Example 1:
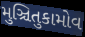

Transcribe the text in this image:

મુઞ્ચિતુકામોવ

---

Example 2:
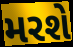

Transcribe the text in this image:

મરશે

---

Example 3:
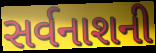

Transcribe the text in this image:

સર્વનાશની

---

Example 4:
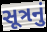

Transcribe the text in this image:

સૂત્રનું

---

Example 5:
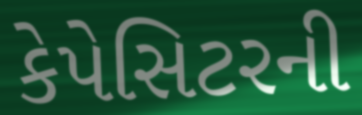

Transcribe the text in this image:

કેપેસિટરની